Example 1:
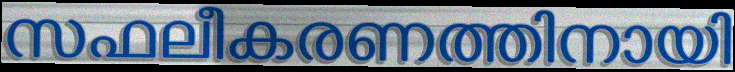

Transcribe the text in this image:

സഫലീകരണത്തിനായി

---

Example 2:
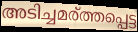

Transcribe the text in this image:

അടിച്ചമര്ത്തപ്പെട്ട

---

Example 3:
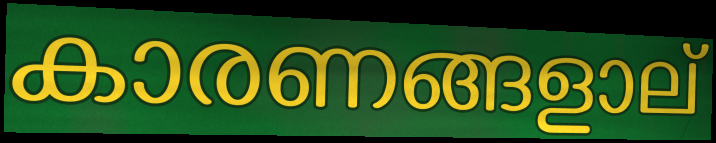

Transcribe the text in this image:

കാരണങ്ങളാല്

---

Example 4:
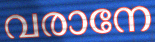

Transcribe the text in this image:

വരാനേ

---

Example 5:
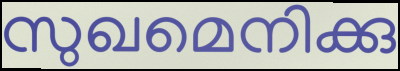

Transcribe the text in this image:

സുഖമെനിക്കു